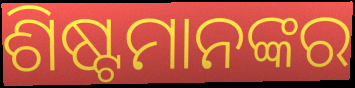
ଶିଷ୍ଟମାନଙ୍କର